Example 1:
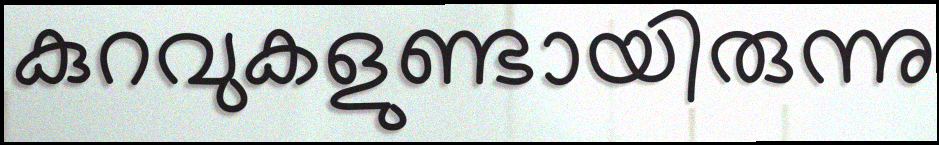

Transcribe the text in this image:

കുറവുകളുണ്ടായിരുന്നു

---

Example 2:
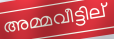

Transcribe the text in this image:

അമ്മവീട്ടില്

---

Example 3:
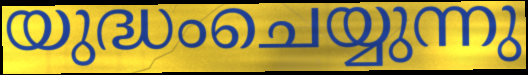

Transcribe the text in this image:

യുദ്ധംചെയ്യുന്നു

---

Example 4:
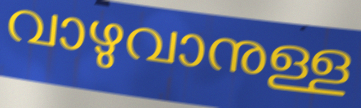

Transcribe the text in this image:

വാഴുവാനുള്ള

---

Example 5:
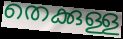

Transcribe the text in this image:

തെക്കുള്ള